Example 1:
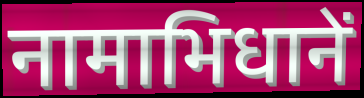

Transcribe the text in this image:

नामाभिधानें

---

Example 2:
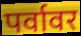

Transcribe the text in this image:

पर्वावर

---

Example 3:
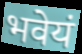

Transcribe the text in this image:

भवेयं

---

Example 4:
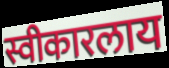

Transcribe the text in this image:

स्वीकारलाय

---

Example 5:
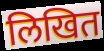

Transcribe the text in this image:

लिखित